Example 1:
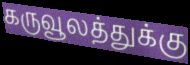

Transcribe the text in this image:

கருவூலத்துக்கு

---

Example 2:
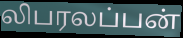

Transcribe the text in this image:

லிபரலப்பன்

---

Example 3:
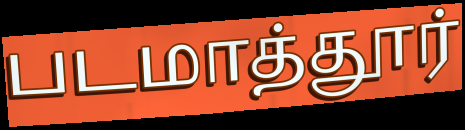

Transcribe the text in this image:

படமாத்தூர்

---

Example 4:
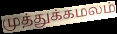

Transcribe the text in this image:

முத்துக்கமலம்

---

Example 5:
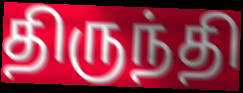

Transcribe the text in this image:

திருந்தி